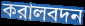
করালবদন